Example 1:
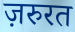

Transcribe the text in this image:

ज़रुरत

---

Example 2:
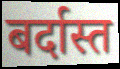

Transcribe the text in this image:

बर्दास्त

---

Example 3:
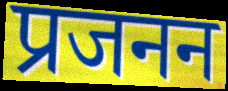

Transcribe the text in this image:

प्रजनन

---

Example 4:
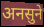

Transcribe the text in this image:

अनसुने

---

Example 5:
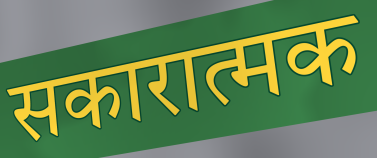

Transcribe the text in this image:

सकारात्‍मक